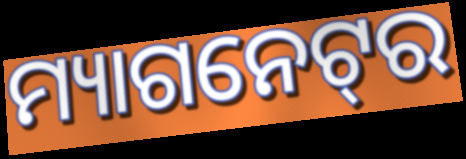
ମ୍ୟାଗନେଟ୍‌ର